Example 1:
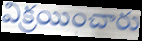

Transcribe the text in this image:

విక్రయించారు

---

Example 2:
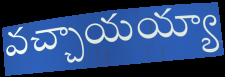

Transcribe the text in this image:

వచ్చాయయ్యా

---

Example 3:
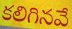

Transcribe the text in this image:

కలిగినవే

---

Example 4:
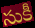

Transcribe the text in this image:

సుకీ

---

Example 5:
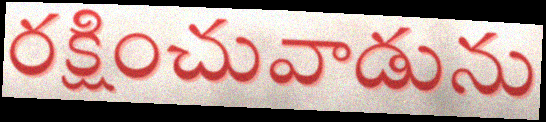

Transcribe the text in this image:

రక్షించువాడును